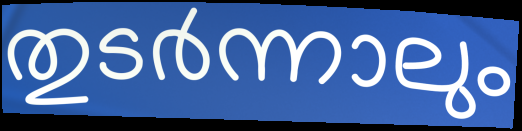
തുടർന്നാലും